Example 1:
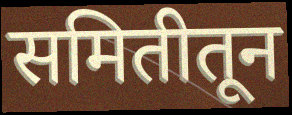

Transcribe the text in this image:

समितीतून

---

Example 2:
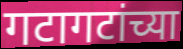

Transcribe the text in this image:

गटागटांच्या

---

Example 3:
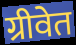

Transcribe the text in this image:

ग्रीवेत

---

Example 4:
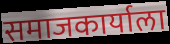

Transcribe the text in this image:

समाजकार्याला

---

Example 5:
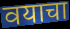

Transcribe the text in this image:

वयाचा